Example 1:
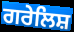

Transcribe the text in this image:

ਗਰੇਲਿਸ਼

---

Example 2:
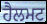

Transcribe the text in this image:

ਹੈਲਮਟ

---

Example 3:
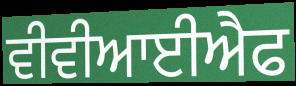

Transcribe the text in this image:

ਵੀਵੀਆਈਐਫ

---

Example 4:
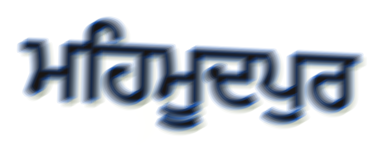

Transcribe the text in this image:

ਮਹਿਮੂਦਪੁਰ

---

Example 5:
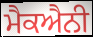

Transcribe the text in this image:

ਮੈਕਐਨੀ